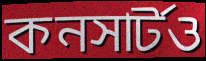
কনসার্টও